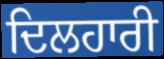
ਦਿਲਹਾਰੀ